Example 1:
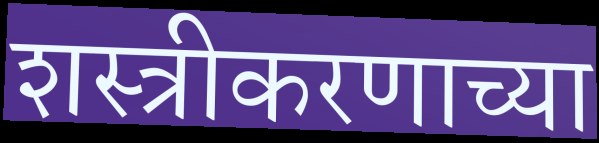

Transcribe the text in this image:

शस्त्रीकरणाच्या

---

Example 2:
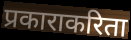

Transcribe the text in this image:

प्रकाराकरिता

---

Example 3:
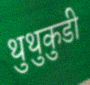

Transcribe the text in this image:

थुथुकुडी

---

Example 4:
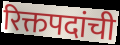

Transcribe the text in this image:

रिक्तपदांची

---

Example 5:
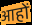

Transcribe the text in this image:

आहों